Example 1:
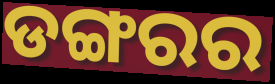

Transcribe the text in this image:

ଡଙ୍ଗରର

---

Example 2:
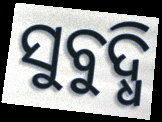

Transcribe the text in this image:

ସୁବୁଦ୍ଧି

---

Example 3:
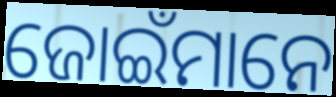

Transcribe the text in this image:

ଜୋଇଁମାନେ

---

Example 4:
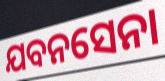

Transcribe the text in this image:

ଯବନସେନା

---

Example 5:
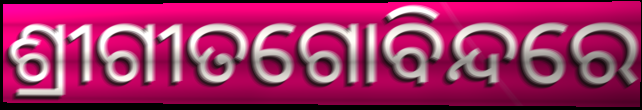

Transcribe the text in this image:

ଶ୍ରୀଗୀତଗୋବିନ୍ଦରେ